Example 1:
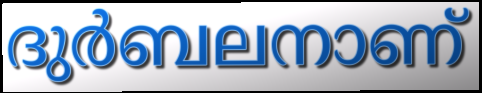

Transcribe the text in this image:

ദുർബലനാണ്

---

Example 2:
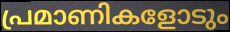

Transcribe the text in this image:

പ്രമാണികളോടും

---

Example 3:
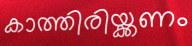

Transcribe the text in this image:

കാത്തിരിയ്ക്കണം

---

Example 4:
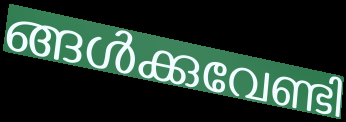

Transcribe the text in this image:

ങ്ങൾക്കുവേണ്ടി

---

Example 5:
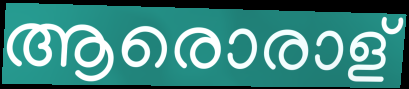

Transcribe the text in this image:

ആരൊരാള്